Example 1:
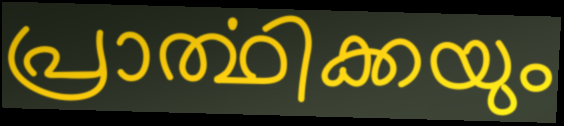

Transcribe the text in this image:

പ്രാൎത്ഥിക്കയും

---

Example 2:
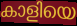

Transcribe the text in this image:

കാളിയെ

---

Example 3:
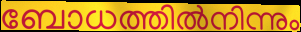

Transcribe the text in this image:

ബോധത്തിൽനിന്നും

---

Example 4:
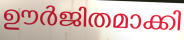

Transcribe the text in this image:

ഊർജിതമാക്കി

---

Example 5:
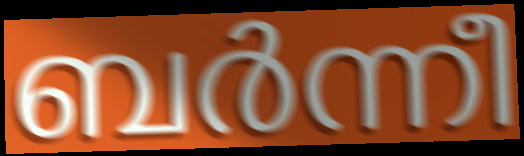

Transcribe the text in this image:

ബർന്നീ